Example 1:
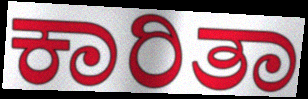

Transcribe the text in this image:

ಕಾರಿತಾ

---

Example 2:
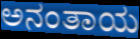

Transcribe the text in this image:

ಅನಂತಾಯ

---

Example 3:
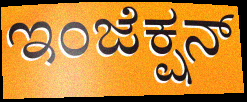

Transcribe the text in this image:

ಇಂಜೆಕ್ಷನ್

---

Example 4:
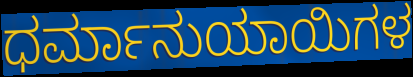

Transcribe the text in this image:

ಧರ್ಮಾನುಯಾಯಿಗಳ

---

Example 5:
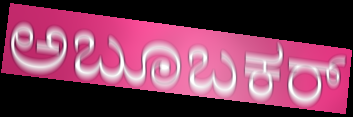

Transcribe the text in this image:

ಅಬೂಬಕರ್